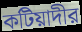
কটিয়াদীর